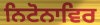
ਨਿਟੋਨਾਵਿਰ